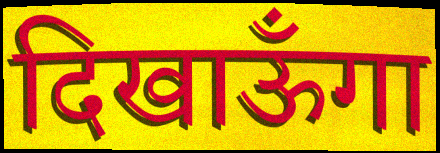
दिखाऊँगा